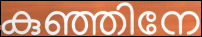
കുഞ്ഞിനേ